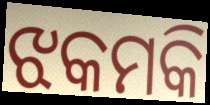
ଝକମକି